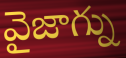
వైజాగ్ను